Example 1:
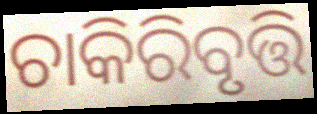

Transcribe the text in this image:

ଚାକିରିବୃତ୍ତି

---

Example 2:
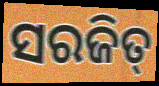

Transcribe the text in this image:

ସରଜିତ୍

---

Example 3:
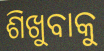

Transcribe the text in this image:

ଶିଖୁବାକୁ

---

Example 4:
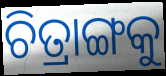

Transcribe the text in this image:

ଚିତ୍ରାଙ୍ଗକୁ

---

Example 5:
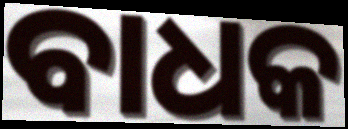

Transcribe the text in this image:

ବାଧକ